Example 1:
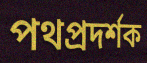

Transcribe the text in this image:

পথপ্রদর্শক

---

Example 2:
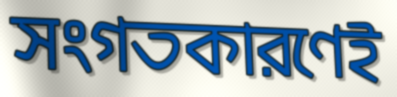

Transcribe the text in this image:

সংগতকারণেই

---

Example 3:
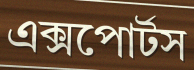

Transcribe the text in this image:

এক্সপোর্টস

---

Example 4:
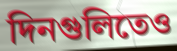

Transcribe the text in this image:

দিনগুলিতেও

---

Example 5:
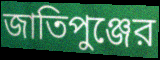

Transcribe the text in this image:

জাতিপুঞ্জের